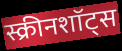
स्क्रीनशॉट्स